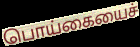
பொய்கையைச்